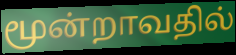
மூன்றாவதில்